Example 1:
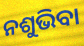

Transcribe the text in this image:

ନଶୁଭିବା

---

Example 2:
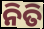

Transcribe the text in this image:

ନିତି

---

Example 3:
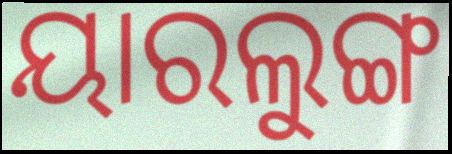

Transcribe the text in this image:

ୟାରଲୁଙ୍ଗ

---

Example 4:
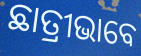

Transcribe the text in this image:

ଛାତ୍ରୀଭାବେ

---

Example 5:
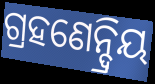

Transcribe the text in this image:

ଗ୍ରହଣେନ୍ଦ୍ରିୟ